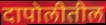
दापोलीतील